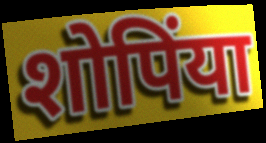
शोपिंया